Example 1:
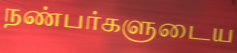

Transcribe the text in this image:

நண்பர்களுடைய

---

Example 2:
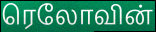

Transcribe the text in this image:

ரெலோவின்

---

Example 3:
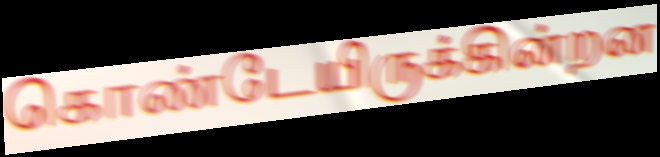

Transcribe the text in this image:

கொண்டேயிருக்கின்றன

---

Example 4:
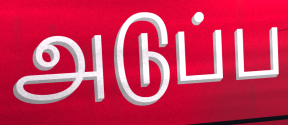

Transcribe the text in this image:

அடுப்ப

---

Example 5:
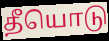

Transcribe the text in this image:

தீயொடு